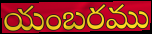
యంబరము